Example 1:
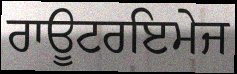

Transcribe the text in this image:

ਰਾਊਟਰਇਮੇਜ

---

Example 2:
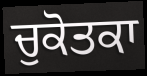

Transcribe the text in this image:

ਚੁਕੋਤਕਾ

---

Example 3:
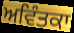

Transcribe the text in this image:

ਅਵਿੰਤਕਾ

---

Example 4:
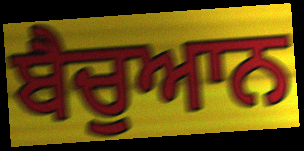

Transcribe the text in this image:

ਬੈਚੁਆਨ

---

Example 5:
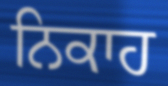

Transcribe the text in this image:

ਨਿਕਾਹ